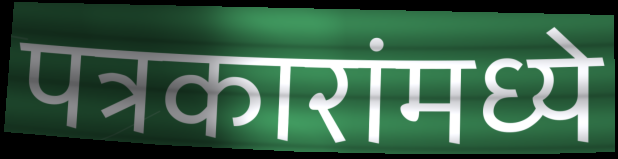
पत्रकारांमध्ये